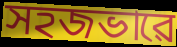
সহজভাৱে